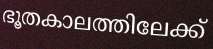
ഭൂതകാലത്തിലേക്ക്